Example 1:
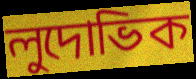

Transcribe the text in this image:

লুদোভিক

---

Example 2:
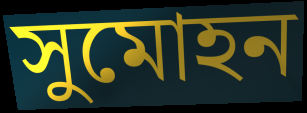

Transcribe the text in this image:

সুমোহন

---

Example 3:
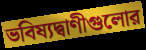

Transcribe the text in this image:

ভবিষ্যদ্বাণীগুলোর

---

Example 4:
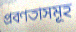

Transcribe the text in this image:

প্রবণতাসমূহ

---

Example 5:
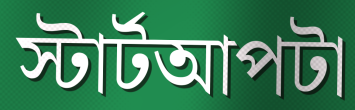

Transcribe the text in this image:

স্টার্টআপটা